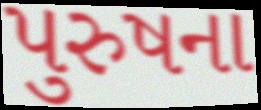
પુરુષના